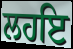
ਲਹਇ